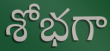
శోభగా